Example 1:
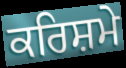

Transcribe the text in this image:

ਕਰਿਸ਼ਮੇ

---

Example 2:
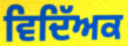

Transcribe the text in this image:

ਵਿਦਿੱਅਕ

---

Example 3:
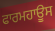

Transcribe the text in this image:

ਫਾਰਮਹਾਊਸ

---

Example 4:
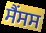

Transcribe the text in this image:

ਸੈਂਸਸ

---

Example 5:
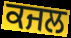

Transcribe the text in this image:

ਕਜਲ